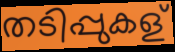
തടിപ്പുകള്